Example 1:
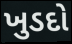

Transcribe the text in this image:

ખુડદો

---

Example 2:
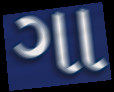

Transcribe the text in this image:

ગા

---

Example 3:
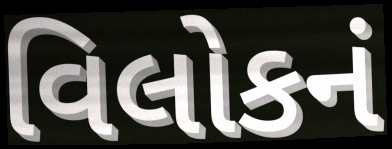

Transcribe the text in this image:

વિલોકનં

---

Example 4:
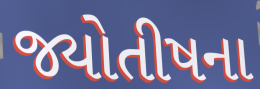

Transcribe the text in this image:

જ્યોતીષના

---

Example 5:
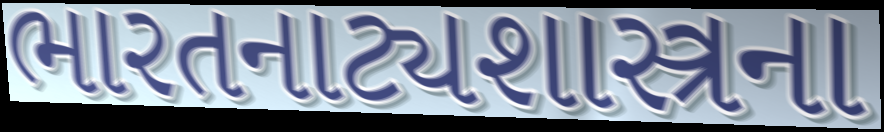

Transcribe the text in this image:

ભારતનાટ્યશાસ્ત્રના